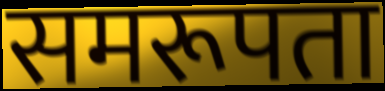
समरूपता